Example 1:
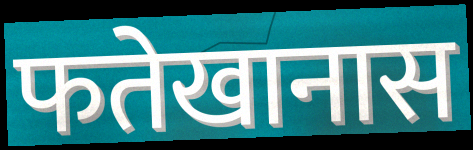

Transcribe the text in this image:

फतेखानास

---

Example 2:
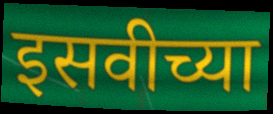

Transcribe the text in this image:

इसवीच्या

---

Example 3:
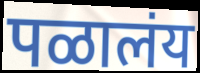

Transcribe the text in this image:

पळालंय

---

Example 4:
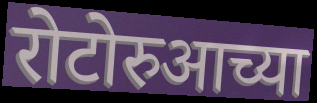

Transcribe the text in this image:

रोटोरुआच्या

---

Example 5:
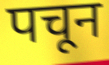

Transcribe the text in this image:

पचून